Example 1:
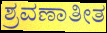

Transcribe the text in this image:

ಶ್ರವಣಾತೀತ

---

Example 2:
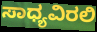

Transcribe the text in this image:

ಸಾಧ್ಯವಿರಲಿ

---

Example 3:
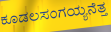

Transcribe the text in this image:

ಕೂಡಲಸಂಗಯ್ಯನೆತ್ತ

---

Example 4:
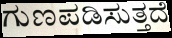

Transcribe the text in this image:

ಗುಣಪಡಿಸುತ್ತದೆ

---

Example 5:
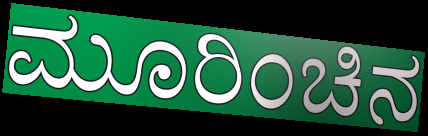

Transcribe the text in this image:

ಮೂರಿಂಚಿನ